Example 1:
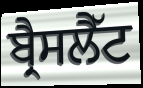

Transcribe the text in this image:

ਬ੍ਰੈਸਲੈੱਟ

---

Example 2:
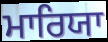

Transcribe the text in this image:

ਮਾਰਿਯਾ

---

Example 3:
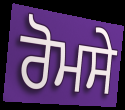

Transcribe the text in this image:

ਰੋਮਸੇ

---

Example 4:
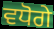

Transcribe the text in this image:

ਵਧੋਗੇ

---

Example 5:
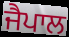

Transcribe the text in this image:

ਜੈਪਾਲ